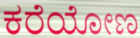
ಕರೆಯೋಣ